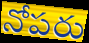
నోపరు